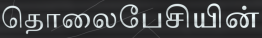
தொலைபேசியின்